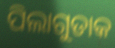
ପିଲାଗୁଡାକ